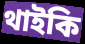
থাইকি